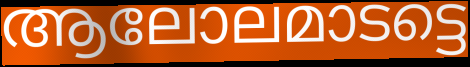
ആലോലമാടട്ടെ